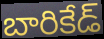
బారికేడ్